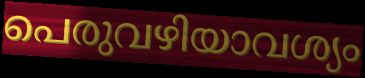
പെരുവഴിയാവശ്യം